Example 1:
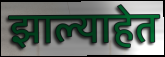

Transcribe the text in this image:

झाल्याहेत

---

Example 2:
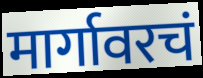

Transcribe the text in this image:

मार्गावरचं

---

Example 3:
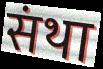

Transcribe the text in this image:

संथा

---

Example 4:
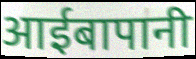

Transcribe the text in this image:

आईबापानी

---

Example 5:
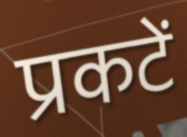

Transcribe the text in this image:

प्रकटें